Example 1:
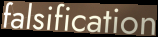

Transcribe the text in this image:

falsification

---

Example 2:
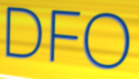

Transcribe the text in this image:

DFO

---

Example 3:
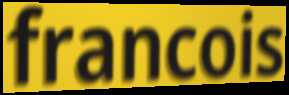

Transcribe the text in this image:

francois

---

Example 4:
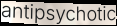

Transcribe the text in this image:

antipsychotic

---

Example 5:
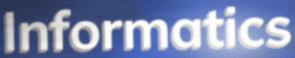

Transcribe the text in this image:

Informatics